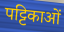
पट्टिकाओं